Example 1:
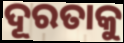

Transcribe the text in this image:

ଦୂରତାକୁ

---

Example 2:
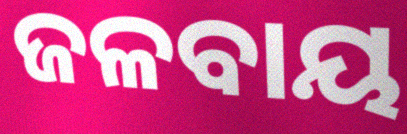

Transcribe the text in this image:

ଜଳବାୟ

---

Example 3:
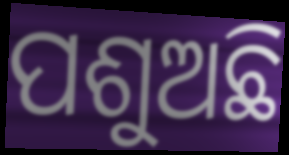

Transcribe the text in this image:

ପଶୁଅଛି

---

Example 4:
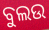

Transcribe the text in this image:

ବୁଲଉ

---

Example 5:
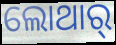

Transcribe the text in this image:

ଲୋଥାର୍